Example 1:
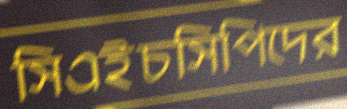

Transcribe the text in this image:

সিএইচসিপিদের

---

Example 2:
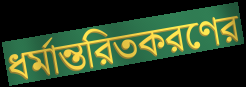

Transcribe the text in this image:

ধর্মান্তরিতকরণের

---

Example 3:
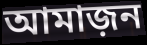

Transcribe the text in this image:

আমাজ়ন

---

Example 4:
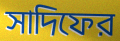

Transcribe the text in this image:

সাদিফের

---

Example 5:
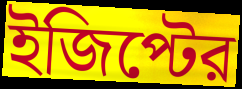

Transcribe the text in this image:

ইজিপ্টের